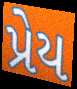
પ્રેય